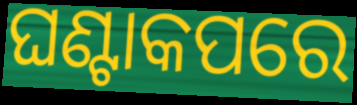
ଘଣ୍ଟାକପରେ